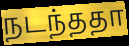
நடந்ததா